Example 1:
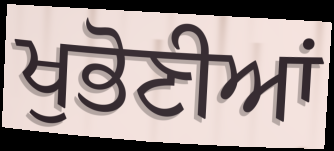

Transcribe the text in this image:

ਖੁਭੋਣੀਆਂ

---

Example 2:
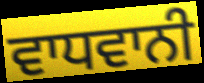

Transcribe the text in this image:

ਵਾਧਵਾਨੀ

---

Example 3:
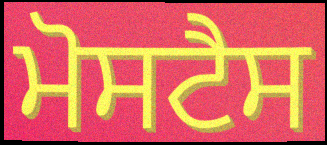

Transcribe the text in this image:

ਮੋਸਟੈਸ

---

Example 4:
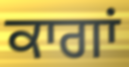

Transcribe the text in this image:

ਕਾਗਾਂ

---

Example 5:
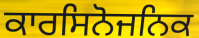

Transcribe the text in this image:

ਕਾਰਸਿਨੋਜਨਿਕ